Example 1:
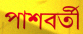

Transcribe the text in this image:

পাশবর্তী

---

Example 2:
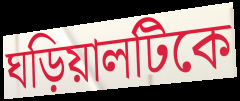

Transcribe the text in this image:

ঘড়িয়ালটিকে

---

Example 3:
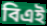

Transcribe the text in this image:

বিএই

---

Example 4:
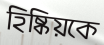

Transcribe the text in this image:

হিষ্কিয়কে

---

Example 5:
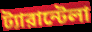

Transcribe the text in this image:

ট্যারান্টেলা